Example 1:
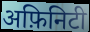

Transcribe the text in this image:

अफ़िनिटी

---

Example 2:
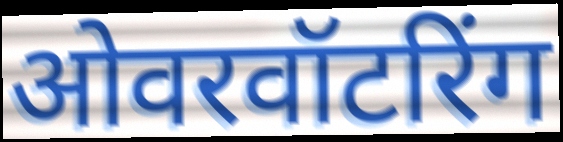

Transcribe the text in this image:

ओवरवॉटरिंग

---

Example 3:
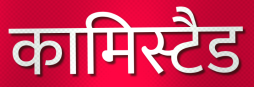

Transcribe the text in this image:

कामिस्टैड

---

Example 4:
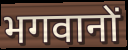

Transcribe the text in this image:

भगवानों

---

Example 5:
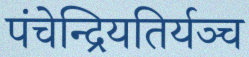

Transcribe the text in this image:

पंचेन्द्रियतिर्यञ्च